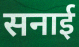
सनाई